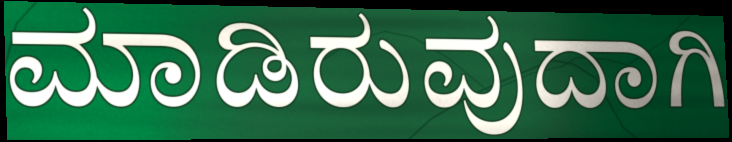
ಮಾಡಿರುವುದಾಗಿ